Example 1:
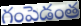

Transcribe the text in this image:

గంపెడంత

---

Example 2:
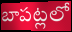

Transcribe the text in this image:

బాపట్లలో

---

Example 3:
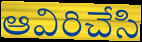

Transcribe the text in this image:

ఆవిరిచేసి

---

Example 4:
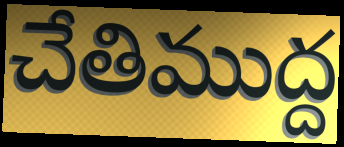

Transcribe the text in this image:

చేతిముద్ద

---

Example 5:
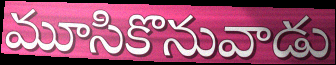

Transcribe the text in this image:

మూసికొనువాడు